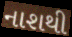
નાશથી